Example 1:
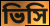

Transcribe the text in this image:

ভিসি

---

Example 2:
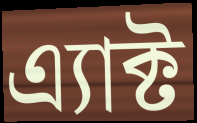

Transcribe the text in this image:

এ্যাক্ট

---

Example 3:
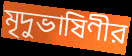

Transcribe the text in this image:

মৃদুভাষিণীর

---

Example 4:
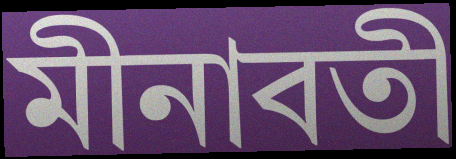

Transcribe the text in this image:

মীনাবতী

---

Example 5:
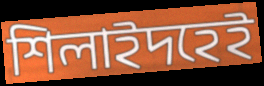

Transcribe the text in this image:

শিলাইদহেই